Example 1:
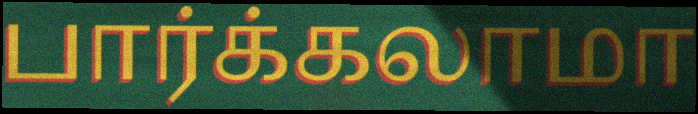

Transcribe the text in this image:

பார்க்கலாமா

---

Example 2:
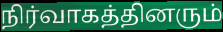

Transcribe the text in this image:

நிர்வாகத்தினரும்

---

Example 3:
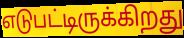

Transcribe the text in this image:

எடுபட்டிருக்கிறது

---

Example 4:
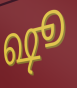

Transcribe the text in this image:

ஷூ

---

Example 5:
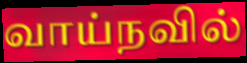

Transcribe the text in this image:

வாய்நவில்